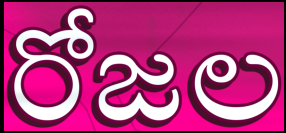
రోజల